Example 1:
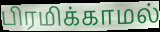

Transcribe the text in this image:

பிரமிக்காமல்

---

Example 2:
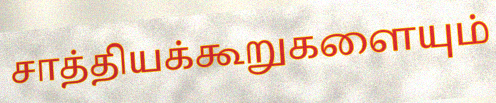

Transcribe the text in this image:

சாத்தியக்கூறுகளையும்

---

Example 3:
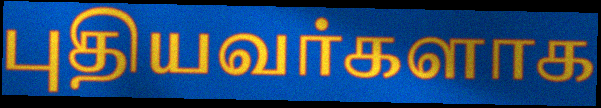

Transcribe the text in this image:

புதியவர்களாக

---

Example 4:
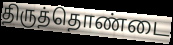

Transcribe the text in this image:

திருத்தொண்டை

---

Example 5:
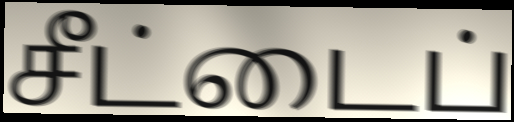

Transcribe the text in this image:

சீட்டைப்